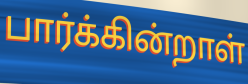
பார்க்கின்றாள்